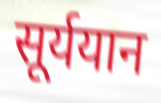
सूर्ययान